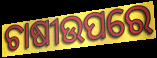
ଚାଷୀଉପରେ